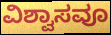
ವಿಶ್ವಾಸವೂ